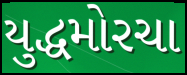
યુદ્ધમોરચા